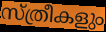
സ്ത്രീകളും